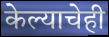
केल्याचेही